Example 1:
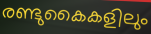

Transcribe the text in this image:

രണ്ടുകൈകളിലും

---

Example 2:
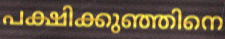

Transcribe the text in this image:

പക്ഷിക്കുഞ്ഞിനെ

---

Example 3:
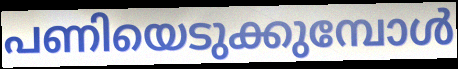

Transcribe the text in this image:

പണിയെടുക്കുമ്പോൾ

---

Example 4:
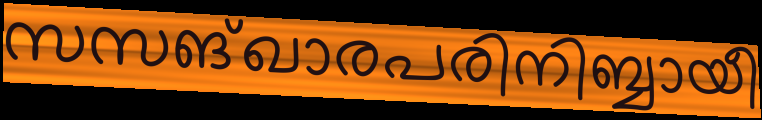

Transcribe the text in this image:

സസങ്ഖാരപരിനിബ്ബായീ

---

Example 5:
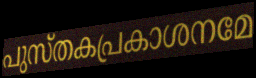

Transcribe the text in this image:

പുസ്തകപ്രകാശനമേ